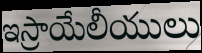
ఇస్రాయేలీయులు